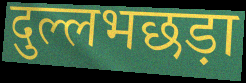
दुल्लभछड़ा